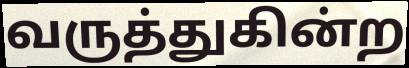
வருத்துகின்ற